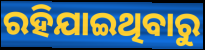
ରହିଯାଇଥିବାରୁ